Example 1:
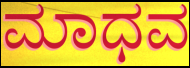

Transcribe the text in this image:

ಮಾಧವ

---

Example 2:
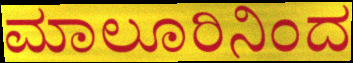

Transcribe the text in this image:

ಮಾಲೂರಿನಿಂದ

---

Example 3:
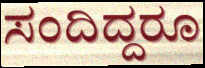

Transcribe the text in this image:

ಸಂದಿದ್ದರೂ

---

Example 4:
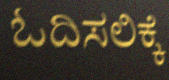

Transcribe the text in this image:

ಓದಿಸಲಿಕ್ಕೆ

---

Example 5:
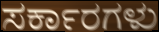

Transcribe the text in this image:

ಸರ್ಕಾರಗಳು